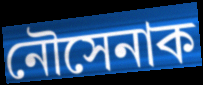
নৌসেনাক